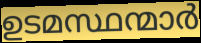
ഉടമസ്ഥന്മാർ